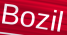
Bozil